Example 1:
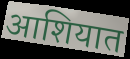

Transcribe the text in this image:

आशियात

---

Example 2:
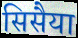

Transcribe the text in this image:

सिसैया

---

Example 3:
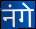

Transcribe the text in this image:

नंगे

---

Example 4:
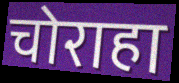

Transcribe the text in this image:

चोराहा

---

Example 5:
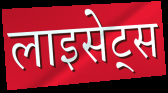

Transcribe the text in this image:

लाइसेट्स